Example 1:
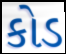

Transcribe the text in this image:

કોડ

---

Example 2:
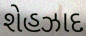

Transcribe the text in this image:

શેહઝાદ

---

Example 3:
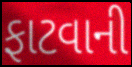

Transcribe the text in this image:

ફાટવાની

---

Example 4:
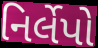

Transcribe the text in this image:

નિર્લેપો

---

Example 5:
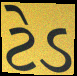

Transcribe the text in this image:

ટેડ